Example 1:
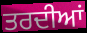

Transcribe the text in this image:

ਤਰਦੀਆਂ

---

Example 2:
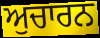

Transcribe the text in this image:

ਅੁਚਾਰਨ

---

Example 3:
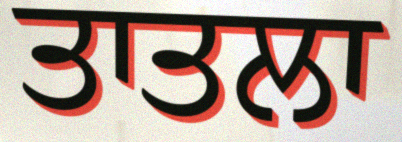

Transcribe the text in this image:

ਤਾਤਲਾ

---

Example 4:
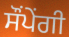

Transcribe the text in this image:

ਸੌਂਪੇਂਗੀ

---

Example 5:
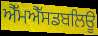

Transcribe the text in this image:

ਐੱਮਐੱਸਡਬਲਿਊ